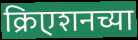
क्रिएशनच्या